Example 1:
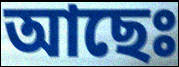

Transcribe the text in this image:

আছেঃ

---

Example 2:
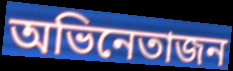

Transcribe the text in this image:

অভিনেতাজন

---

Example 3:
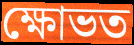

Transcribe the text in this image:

ক্ষোভত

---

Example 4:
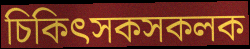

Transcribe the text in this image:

চিকিৎসকসকলক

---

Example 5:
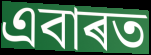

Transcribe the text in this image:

এবাৰত